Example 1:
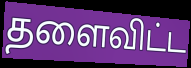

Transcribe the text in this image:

தளைவிட்ட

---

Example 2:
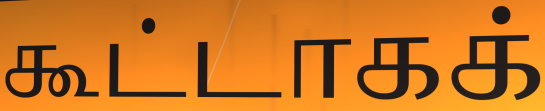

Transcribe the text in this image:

கூட்டாகக்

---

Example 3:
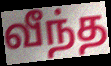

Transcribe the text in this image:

வீந்த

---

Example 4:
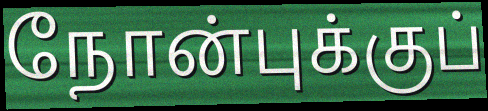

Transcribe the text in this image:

நோன்புக்குப்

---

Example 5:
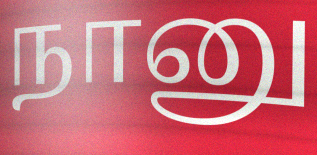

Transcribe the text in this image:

நானு